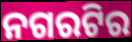
ନଗରଟିର